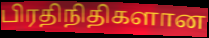
பிரதிநிதிகளான